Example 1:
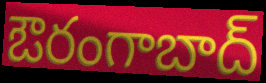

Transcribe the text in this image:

ఔరంగాబాద్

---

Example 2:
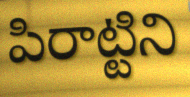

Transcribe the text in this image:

పిరాట్టిని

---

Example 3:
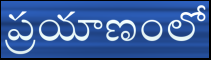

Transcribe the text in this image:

ప్రయాణంలో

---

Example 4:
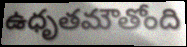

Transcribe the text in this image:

ఉధృతమౌతోంది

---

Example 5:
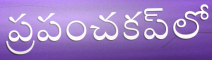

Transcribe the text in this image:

ప్రపంచకప్‌లో